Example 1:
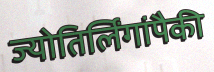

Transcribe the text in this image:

ज्योतिर्लिंगांपैकी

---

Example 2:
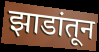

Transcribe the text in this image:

झाडांतून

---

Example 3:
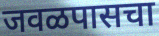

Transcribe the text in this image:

जवळपासचा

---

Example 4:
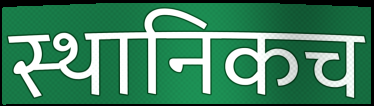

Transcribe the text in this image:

स्थानिकच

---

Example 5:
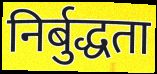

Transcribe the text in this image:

निर्बुद्धता